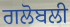
ਗਲੋਬਲੀ